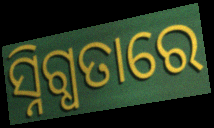
ସ୍ନିଗ୍ଧତାରେ